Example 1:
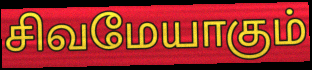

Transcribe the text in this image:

சிவமேயாகும்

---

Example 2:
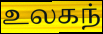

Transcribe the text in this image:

உலகந்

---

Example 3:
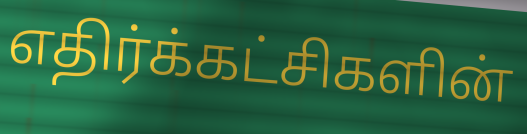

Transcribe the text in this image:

எதிர்க்கட்சிகளின்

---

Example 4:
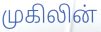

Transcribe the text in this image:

முகிலின்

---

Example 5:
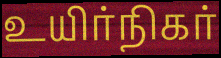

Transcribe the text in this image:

உயிர்நிகர்